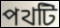
পথটি